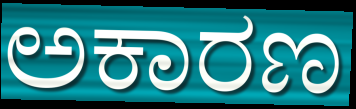
ಅಕಾರಣ